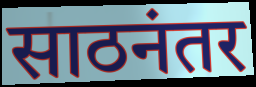
साठनंतर